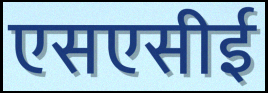
एसएसीई